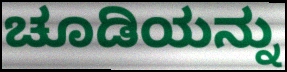
ಚೂಡಿಯನ್ನು